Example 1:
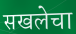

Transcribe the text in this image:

सखलेचा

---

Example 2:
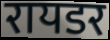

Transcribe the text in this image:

रायडर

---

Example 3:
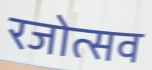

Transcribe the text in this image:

रजोत्सव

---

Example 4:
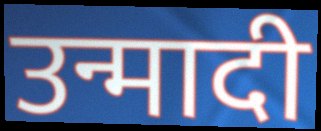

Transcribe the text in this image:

उन्मादी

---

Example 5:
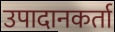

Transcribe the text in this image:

उपादानकर्ता